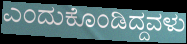
ಎಂದುಕೊಂಡಿದ್ದವಳು